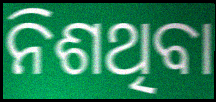
ନିଶଥିବା